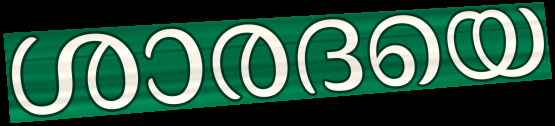
ശാരദയെ